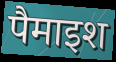
पैमाइश